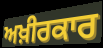
ਅਖ਼ੀਰਕਾਰ